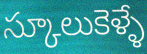
స్కూలుకెళ్ళే